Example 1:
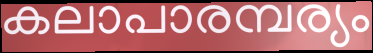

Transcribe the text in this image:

കലാപാരമ്പര്യം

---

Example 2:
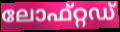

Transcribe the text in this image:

ലോഫ്റ്റഡ്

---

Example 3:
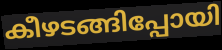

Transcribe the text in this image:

കീഴടങ്ങിപ്പോയി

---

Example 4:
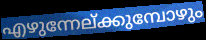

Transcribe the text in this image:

എഴുന്നേല്ക്കുമ്പോഴും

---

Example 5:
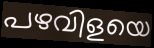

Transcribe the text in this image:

പഴവിളയെ